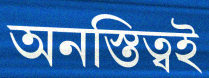
অনস্তিত্বই